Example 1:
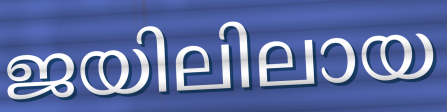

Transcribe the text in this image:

ജയിലിലായ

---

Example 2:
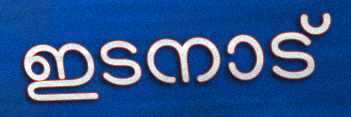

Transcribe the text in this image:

ഇടനാട്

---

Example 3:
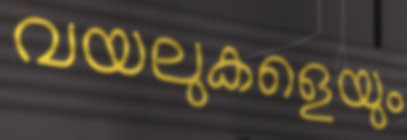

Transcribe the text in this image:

വയലുകളെയും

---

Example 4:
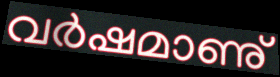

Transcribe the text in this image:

വർഷമാണു്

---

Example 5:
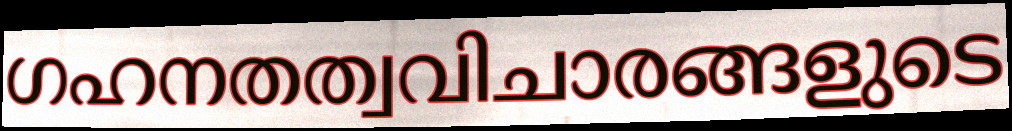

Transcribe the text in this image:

ഗഹനതത്വവിചാരങ്ങളുടെ